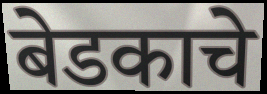
बेडकाचे